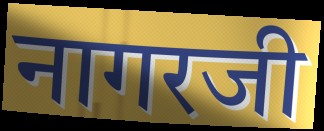
नागरजी